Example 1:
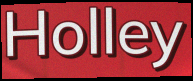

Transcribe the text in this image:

Holley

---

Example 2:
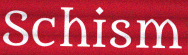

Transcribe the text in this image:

Schism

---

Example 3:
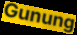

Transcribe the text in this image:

Gunung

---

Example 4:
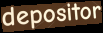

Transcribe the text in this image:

depositor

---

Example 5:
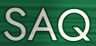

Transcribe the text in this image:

SAQ